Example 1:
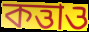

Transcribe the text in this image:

কত্তাও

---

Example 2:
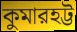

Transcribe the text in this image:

কুমারহট্ট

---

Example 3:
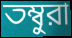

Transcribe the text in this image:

তম্বুরা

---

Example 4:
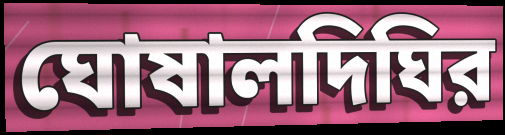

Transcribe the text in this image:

ঘোষালদিঘির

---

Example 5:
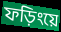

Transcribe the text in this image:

ফড়িংয়ে